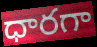
ధారగా